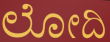
ಲೋದಿ